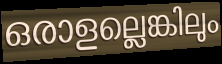
ഒരാളല്ലെങ്കിലും